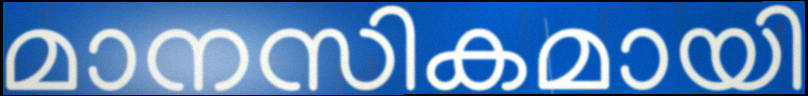
മാനസികമായി